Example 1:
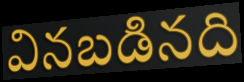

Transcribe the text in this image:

వినబడినది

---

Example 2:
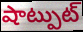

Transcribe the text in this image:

షాట్పుట్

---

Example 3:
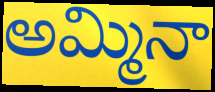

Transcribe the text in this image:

అమ్మినా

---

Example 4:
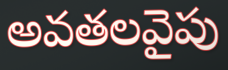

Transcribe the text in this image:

అవతలవైపు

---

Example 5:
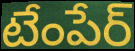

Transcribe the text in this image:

టేంపేర్